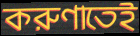
করুণাতেই